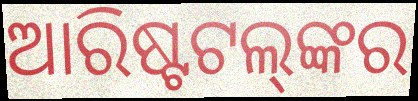
ଆରିଷ୍ଟଟଲ୍‌ଙ୍କର